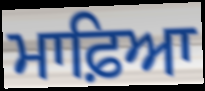
ਮਾਫ਼ਿਆ